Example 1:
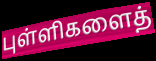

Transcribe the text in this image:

புள்ளிகளைத்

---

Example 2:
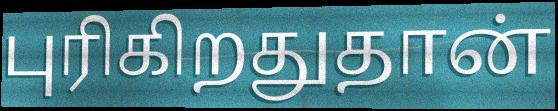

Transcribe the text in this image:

புரிகிறதுதான்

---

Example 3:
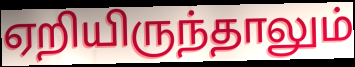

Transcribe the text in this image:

ஏறியிருந்தாலும்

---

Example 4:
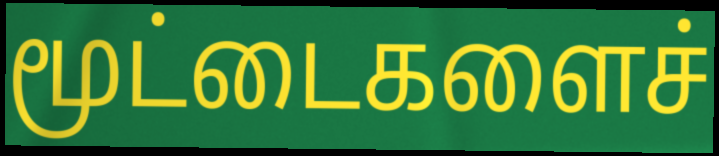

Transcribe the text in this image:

மூட்டைகளைச்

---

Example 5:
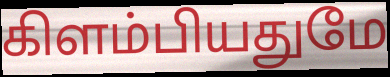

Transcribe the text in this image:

கிளம்பியதுமே